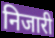
निजारी